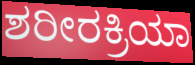
ಶರೀರಕ್ರಿಯಾ